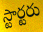
స్టార్టరు